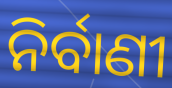
ନିର୍ବାଣୀ